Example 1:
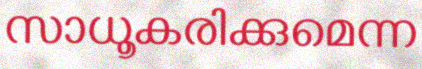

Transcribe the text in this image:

സാധൂകരിക്കുമെന്ന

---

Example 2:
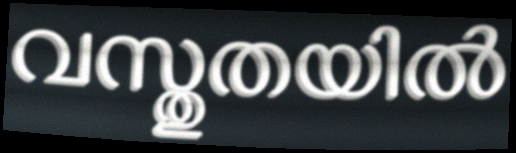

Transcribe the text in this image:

വസ്തുതയിൽ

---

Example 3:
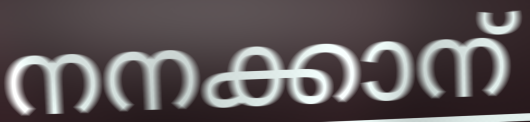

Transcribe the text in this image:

നനക്കാന്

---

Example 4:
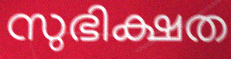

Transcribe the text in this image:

സുഭിക്ഷത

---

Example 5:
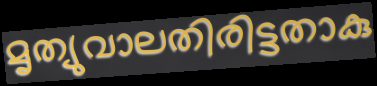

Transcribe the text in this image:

മൃത്യുവാലതിരിട്ടതാകു